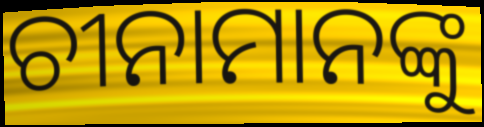
ଚୀନାମାନଙ୍କୁ